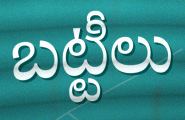
బట్టీలు